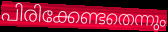
പിരിക്കേണ്ടതെന്നും